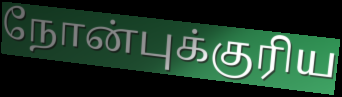
நோன்புக்குரிய